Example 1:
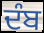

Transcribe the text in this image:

ਦੰਬ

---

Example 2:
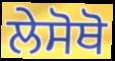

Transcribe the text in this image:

ਲੇਸੋਥੋ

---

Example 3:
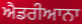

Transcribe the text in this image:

ਐਡਰੀਆਨਾ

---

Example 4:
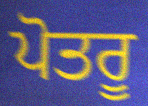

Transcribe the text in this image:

ਪੋਤਰੂ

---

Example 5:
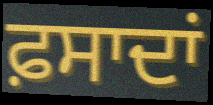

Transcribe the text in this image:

ਫ਼ਸਾਦਾਂ